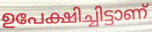
ഉപേക്ഷിച്ചിട്ടാണ്